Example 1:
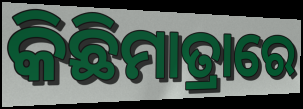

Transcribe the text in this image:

କିଛିମାତ୍ରାରେ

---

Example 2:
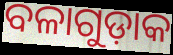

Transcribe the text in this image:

ବଳାଗୁଡ଼ାକ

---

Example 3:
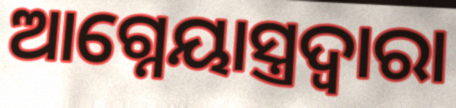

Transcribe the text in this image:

ଆଗ୍ନେୟାସ୍ତ୍ରଦ୍ୱାରା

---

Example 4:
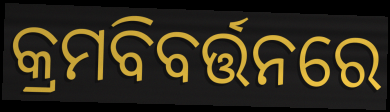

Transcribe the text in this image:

କ୍ରମବିବର୍ତ୍ତନରେ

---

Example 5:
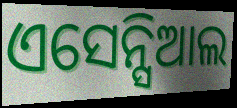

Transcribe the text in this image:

ଏସେନ୍ସିଆଲ